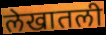
लेखातली